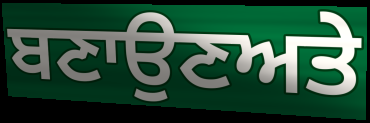
ਬਣਾਉਣਅਤੇ